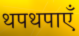
थपथपाएँ